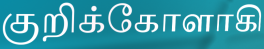
குறிக்கோளாகி